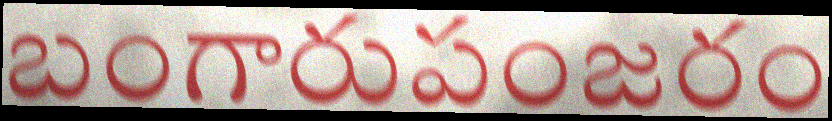
బంగారుపంజరం